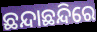
ଛନ୍ଦାଛନ୍ଦିରେ